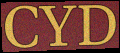
CYD